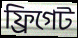
ফ্রিগেট